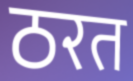
ठरत